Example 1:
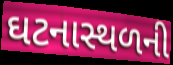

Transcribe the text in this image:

ઘટનાસ્થળની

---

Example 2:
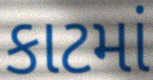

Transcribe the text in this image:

કાટમાં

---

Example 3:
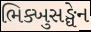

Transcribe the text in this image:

ભિક્ખુસઙ્ઘેન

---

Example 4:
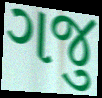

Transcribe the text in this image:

ગજુ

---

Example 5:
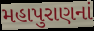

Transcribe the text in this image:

મહાપુરાણનાં